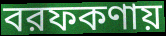
বরফকণায়